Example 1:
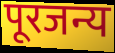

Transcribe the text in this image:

पूरजन्य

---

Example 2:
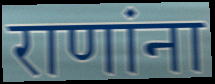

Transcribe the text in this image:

राणांना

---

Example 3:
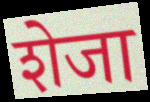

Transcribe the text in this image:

शेजा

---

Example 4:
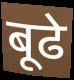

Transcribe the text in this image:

बूढे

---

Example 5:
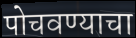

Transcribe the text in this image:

पोचवण्याचा